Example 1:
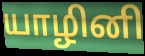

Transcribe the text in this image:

யாழினி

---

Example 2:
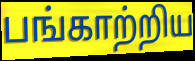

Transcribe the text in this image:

பங்காற்றிய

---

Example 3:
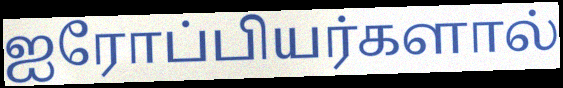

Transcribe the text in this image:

ஐரோப்பியர்களால்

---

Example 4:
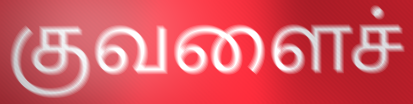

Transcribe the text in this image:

குவளைச்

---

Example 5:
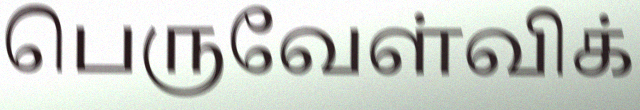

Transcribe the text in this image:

பெருவேள்விக்